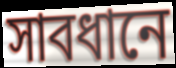
সাবধানে